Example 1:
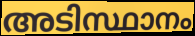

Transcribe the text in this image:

അടിസ്ഥാനം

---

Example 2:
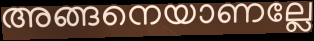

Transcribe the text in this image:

അങ്ങനെയാണല്ലേ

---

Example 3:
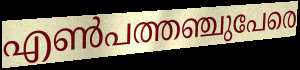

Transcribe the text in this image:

എൺപത്തഞ്ചുപേരെ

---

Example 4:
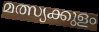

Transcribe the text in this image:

മത്സ്യക്കുളം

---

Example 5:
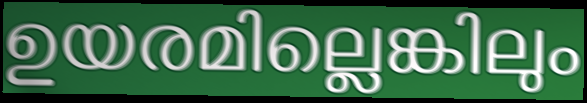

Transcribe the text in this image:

ഉയരമില്ലെങ്കിലും